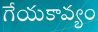
గేయకావ్యం